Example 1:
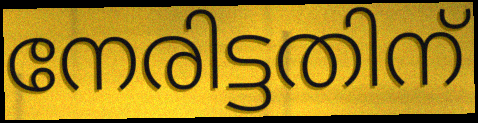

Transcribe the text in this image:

നേരിട്ടതിന്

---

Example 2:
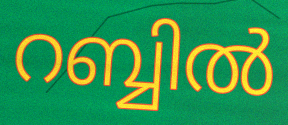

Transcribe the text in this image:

റബ്ബിൽ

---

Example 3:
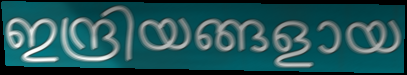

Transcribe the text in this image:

ഇന്ദ്രിയങ്ങളായ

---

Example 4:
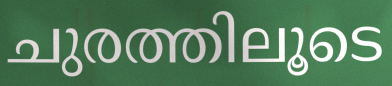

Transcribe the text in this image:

ചുരത്തിലൂടെ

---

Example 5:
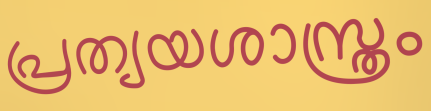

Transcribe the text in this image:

പ്രത്യയശാസ്ത്രം